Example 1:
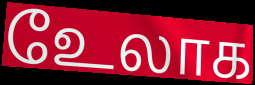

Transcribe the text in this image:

உேலாக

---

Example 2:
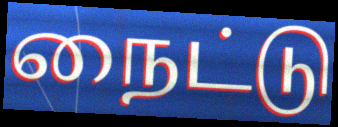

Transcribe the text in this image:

நைட்டு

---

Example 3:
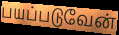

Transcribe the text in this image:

பயப்படுவேன்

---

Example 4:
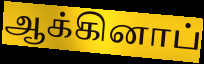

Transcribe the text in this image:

ஆக்கினாப்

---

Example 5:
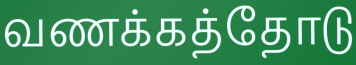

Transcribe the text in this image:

வணக்கத்தோடு